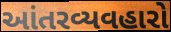
આંતરવ્યવહારો